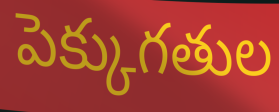
పెక్కుగతుల